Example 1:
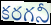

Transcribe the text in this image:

కరగనీ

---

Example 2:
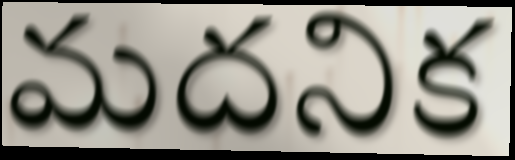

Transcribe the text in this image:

మదనిక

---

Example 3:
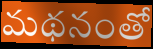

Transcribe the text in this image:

మథనంతో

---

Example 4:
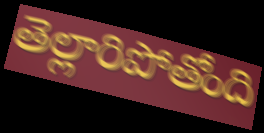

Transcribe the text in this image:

తెల్లారిపోతోంది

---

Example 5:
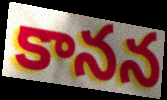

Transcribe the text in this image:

కానన